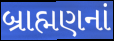
બ્રાહ્મણનાં